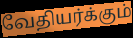
வேதியர்க்கும்